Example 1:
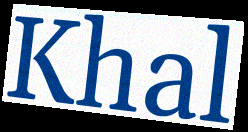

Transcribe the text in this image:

Khal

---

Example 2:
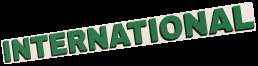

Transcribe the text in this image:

INTERNATIONAL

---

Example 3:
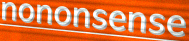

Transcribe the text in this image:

nononsense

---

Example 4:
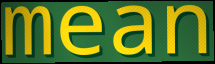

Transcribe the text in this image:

mean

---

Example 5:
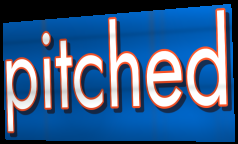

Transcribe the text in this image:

pitched